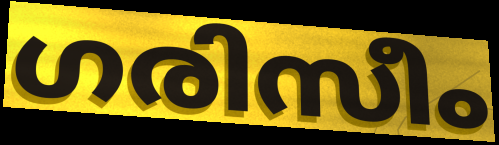
ഗരിസീം